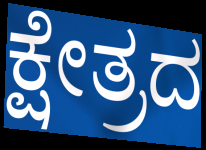
ಕ್ಷೇತ್ರದ